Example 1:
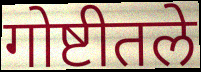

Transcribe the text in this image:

गोष्टीतले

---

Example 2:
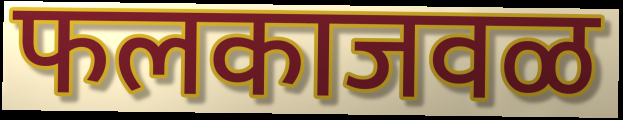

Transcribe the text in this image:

फलकाजवळ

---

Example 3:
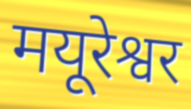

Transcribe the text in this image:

मयूरेश्वर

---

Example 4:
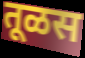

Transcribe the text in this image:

तूळस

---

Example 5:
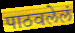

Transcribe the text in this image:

पाठवलेलं